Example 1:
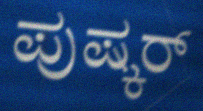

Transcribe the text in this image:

ಪುಷ್ಕರ್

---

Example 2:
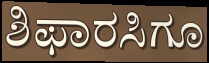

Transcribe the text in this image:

ಶಿಫಾರಸಿಗೂ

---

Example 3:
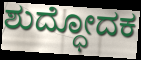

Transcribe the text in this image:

ಶುದ್ಧೋದಕ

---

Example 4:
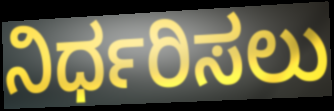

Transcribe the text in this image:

ನಿರ್ಧರಿಸಲು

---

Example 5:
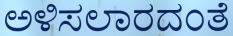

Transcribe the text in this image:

ಅಳಿಸಲಾರದಂತೆ